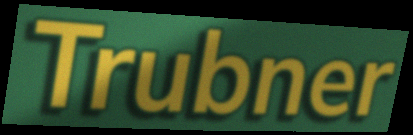
Trubner